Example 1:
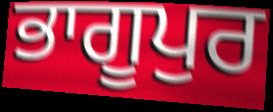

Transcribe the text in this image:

ਭਾਗੂਪੁਰ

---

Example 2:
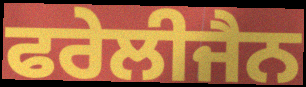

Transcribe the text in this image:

ਫਰੇਲੀਜੈਨ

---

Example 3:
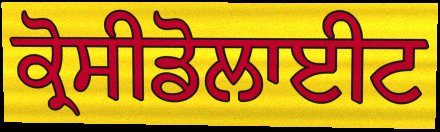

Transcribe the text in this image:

ਕ੍ਰੋਸੀਡੋਲਾਈਟ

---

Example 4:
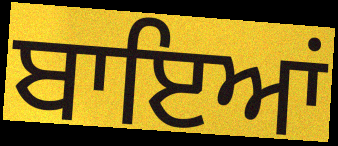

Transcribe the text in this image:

ਬਾਇਆਂ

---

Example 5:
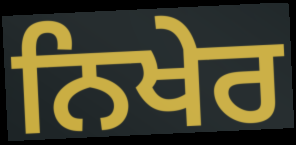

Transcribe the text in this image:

ਨਿਖੇਰ